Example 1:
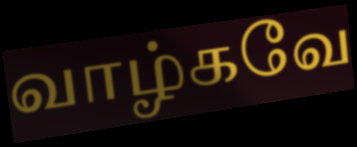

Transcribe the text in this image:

வாழ்கவே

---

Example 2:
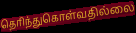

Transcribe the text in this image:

தெரிந்துகொள்வதில்லை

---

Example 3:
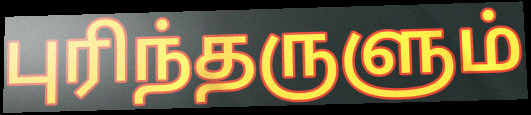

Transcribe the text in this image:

புரிந்தருளும்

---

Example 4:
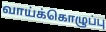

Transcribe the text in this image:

வாய்க்கொழுப்பு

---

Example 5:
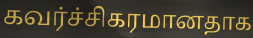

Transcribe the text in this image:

கவர்ச்சிகரமானதாக